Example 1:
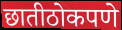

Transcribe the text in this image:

छातीठोकपणे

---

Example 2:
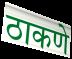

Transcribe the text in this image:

ठाकणे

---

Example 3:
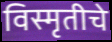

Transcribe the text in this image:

विस्मृतीचे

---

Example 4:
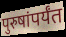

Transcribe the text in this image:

पुरुषांपर्यंत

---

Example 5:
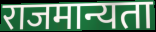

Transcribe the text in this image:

राजमान्यता